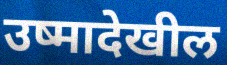
उष्मादेखील